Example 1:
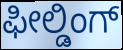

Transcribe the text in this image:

ಫೀಲ್ಡಿಂಗ್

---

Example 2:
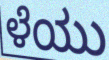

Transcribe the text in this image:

ಳೆಯು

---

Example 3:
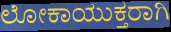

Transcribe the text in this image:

ಲೋಕಾಯುಕ್ತರಾಗಿ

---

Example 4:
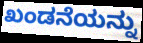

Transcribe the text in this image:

ಖಂಡನೆಯನ್ನು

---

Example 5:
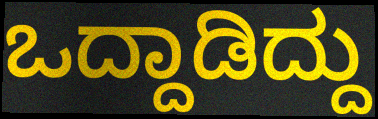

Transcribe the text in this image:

ಒದ್ದಾಡಿದ್ದು